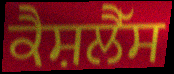
ਕੈਸ਼ਲੈੱਸ